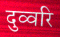
दुव्वरि